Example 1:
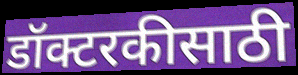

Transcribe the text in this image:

डॉक्टरकीसाठी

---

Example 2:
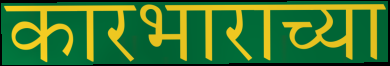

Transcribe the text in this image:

कारभाराच्या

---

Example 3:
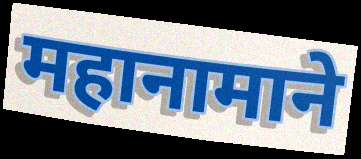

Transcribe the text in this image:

महानामाने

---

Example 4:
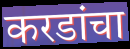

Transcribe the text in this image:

करडांचा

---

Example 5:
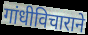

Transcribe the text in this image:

गांधीविचाराने